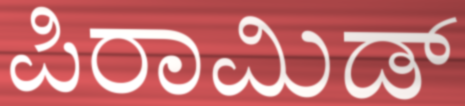
ಪಿರಾಮಿಡ್